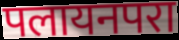
पलायनपरा